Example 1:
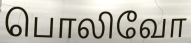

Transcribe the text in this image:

பொலிவோ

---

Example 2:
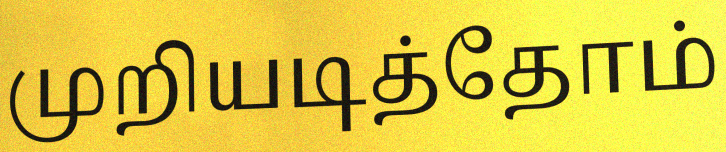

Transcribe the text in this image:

முறியடித்தோம்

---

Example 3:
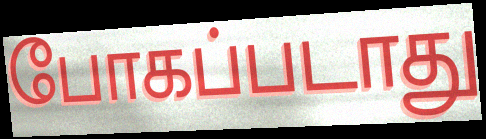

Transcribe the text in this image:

போகப்படாது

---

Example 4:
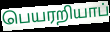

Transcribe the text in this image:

பெயரறியாப்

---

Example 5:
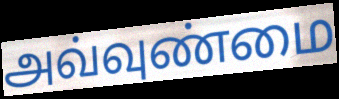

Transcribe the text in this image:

அவ்வுண்மை